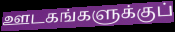
ஊடகங்களுக்குப்